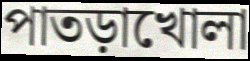
পাতড়াখোলা